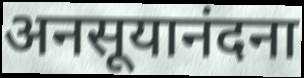
अनसूयानंदना